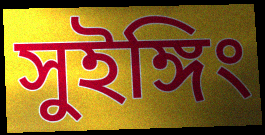
সুইঙ্গিং